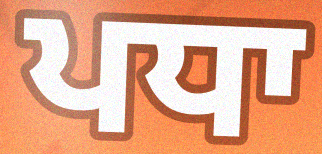
ਪਧਾ